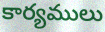
కార్యములు